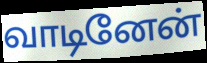
வாடினேன்